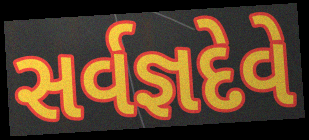
સર્વજ્ઞદેવે